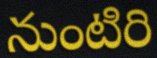
నుంటిరి